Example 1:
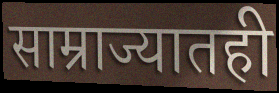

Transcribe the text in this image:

साम्राज्यातही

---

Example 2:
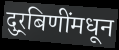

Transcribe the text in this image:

दुर्बिणींमधून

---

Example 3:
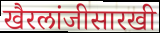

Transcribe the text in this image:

खैरलांजीसारखी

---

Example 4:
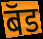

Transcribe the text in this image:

बॅड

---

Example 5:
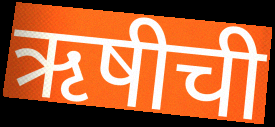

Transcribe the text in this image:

ॠषीची